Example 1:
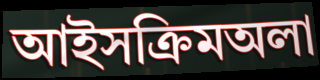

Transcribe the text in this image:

আইসক্রিমঅলা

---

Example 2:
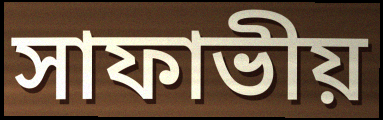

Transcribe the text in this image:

সাফাভীয়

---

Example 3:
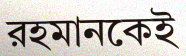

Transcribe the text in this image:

রহমানকেই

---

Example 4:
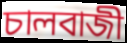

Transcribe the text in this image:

চালবাজী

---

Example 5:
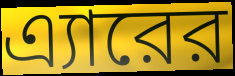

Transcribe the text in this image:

এ্যারের